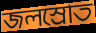
জলস্রোত